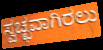
ಸ್ವಚ್ಛವಾಗಿರಲು